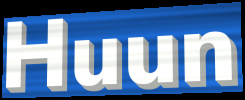
Huun